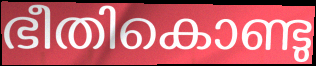
ഭീതികൊണ്ടു